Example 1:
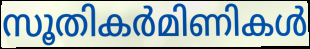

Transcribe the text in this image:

സൂതികർമിണികൾ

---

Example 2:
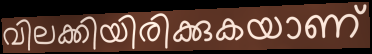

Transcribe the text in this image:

വിലക്കിയിരിക്കുകയാണ്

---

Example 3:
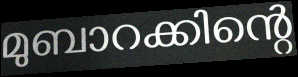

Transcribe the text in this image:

മുബാറക്കിന്റെ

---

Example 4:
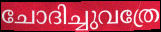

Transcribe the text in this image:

ചോദിച്ചുവത്രേ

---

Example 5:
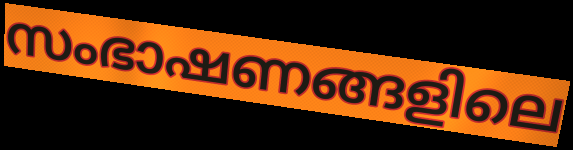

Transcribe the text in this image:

സംഭാഷണങ്ങളിലെ